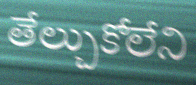
తేల్చుకోలేని